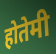
होतेमी